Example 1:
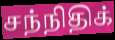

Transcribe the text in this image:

சந்நிதிக்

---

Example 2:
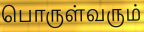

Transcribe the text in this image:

பொருள்வரும்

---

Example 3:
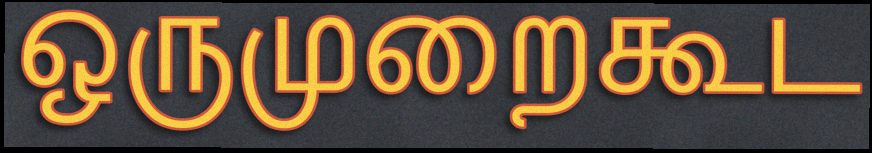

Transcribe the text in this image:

ஒருமுறைகூட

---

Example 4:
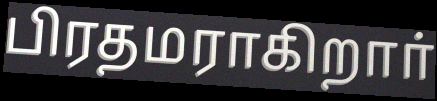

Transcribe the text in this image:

பிரதமராகிறார்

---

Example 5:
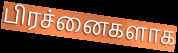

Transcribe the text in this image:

பிரச்னைகளாக